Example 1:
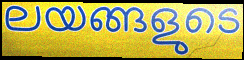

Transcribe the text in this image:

ലയങ്ങളുടെ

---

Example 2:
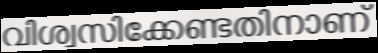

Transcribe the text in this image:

വിശ്വസിക്കേണ്ടതിനാണ്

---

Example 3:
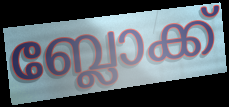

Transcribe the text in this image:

ബ്ലോക്ക്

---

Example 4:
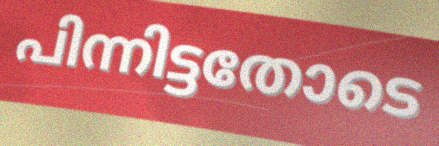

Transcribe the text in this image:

പിന്നിട്ടതോടെ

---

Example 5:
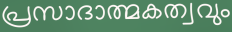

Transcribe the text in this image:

പ്രസാദാത്മകത്വവും